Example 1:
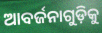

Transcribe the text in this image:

ଆବର୍ଜନାଗୁଡ଼ିକୁ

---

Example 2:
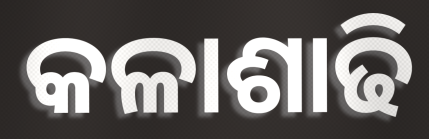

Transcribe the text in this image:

କଳାଶାଢି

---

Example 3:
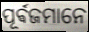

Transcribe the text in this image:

ପୂର୍ଵଜମାନେ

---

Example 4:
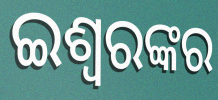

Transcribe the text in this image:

ଇଶ୍ୱରଙ୍କର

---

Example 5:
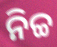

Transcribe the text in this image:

ନିଚ୍ଚ